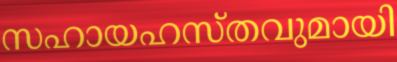
സഹായഹസ്തവുമായി